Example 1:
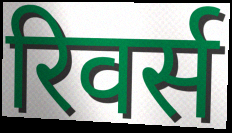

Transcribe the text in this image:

रिवर्स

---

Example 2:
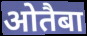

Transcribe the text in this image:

ओतैबा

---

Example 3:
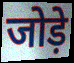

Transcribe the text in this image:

जोड़े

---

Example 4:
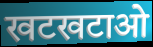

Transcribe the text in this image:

खटखटाओ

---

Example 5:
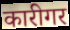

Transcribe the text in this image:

कारीगर